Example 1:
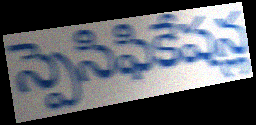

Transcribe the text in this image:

స్పెసిఫికేషన్ల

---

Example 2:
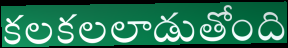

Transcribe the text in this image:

కలకలలాడుతోంది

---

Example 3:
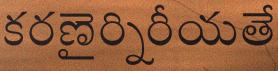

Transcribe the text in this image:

కరణైర్నిరీయతే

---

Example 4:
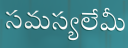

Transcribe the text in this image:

సమస్యలేమీ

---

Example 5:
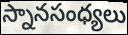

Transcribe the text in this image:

స్నానసంధ్యలు